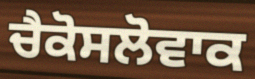
ਚੈਕੋਸਲੋਵਾਕ